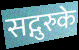
सद्गुरुके